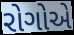
રોગોએ